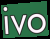
ivo